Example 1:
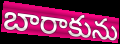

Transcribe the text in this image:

బారాకును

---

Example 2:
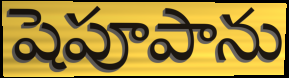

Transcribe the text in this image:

షెపూపాను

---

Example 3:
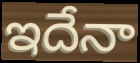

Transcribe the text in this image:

ఇదేనా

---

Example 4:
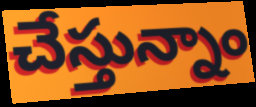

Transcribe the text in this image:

చేస్తున్నాం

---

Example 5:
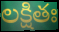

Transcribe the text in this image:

లక్షితః